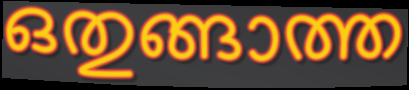
ഒതുങ്ങാത്ത